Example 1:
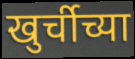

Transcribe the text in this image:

खुर्चीच्या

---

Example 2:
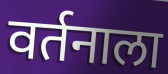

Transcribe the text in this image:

वर्तनाला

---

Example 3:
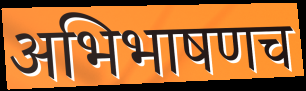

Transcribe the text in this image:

अभिभाषणच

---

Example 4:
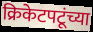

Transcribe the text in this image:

क्रिकेटपटूंच्या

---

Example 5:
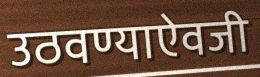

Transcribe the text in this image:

उठवण्याऐवजी